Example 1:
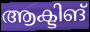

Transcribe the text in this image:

ആക്ടിങ്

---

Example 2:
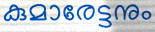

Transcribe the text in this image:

കുമാരേട്ടനും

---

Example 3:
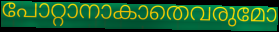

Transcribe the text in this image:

പോറ്റാനാകാതെവരുമോ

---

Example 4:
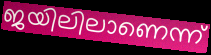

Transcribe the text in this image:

ജയിലിലാണെന്ന്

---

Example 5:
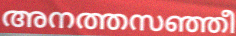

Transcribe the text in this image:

അനത്തസഞ്ഞീ